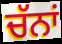
ਚੱਨਾਂ